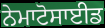
ਨੇਮਾਟੋਸਾਈਡ